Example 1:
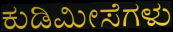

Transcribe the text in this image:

ಕುಡಿಮೀಸೆಗಳು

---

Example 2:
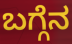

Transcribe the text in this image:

ಬಗ್ಗೆನ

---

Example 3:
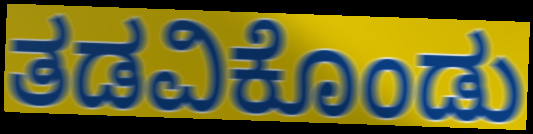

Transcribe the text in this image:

ತಡವಿಕೊಂಡು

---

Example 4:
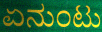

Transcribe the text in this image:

ಏನುಂಟು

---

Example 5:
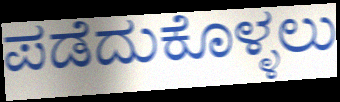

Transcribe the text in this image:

ಪಡೆದುಕೊಳ್ಳಲು